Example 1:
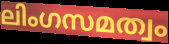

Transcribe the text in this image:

ലിംഗസമത്വം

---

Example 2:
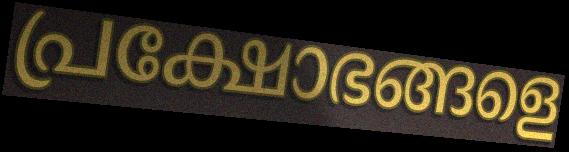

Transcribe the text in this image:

പ്രക്ഷോഭങ്ങളെ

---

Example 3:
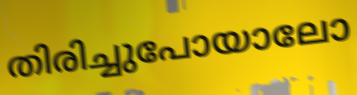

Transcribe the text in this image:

തിരിച്ചുപോയാലോ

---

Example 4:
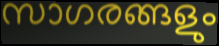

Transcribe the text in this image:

സാഗരങ്ങളും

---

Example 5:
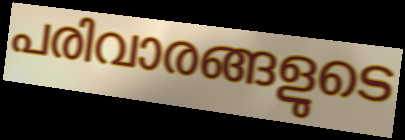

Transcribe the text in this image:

പരിവാരങ്ങളുടെ